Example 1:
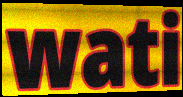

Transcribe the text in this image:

wati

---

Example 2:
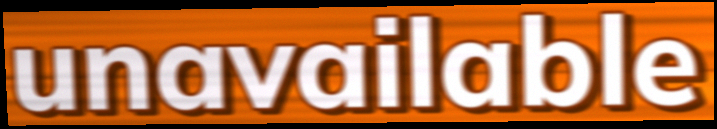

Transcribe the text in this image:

unavailable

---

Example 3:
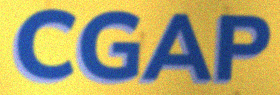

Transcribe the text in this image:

CGAP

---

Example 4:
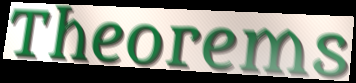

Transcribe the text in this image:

Theorems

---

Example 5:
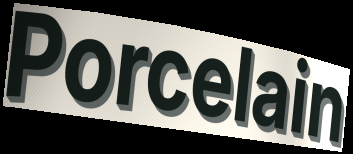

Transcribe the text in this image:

Porcelain